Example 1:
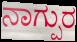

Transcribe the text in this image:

ನಾಗ್ಪುರ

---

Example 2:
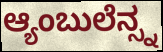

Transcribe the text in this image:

ಆ್ಯಂಬುಲೆನ್ಸ್ನ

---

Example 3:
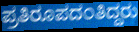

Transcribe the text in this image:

ಪ್ರತಿರೂಪದಂತಿದ್ದರು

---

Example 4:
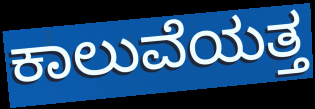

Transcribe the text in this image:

ಕಾಲುವೆಯತ್ತ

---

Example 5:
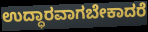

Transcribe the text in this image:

ಉದ್ಧಾರವಾಗಬೇಕಾದರೆ